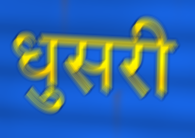
धुसरी